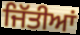
ਜਿੱਤੀਆਂ